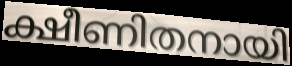
ക്ഷീണിതനായി